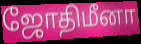
ஜோதிமீனா